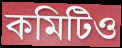
কমিটিও